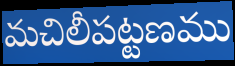
మచిలీపట్టణము